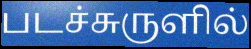
படச்சுருளில்